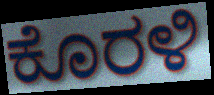
ಕೊರಳಿ